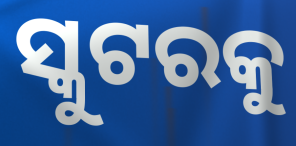
ସ୍କୁଟରକୁ